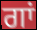
ਗਾਂ